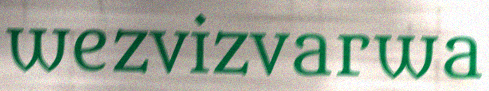
wezvizvarwa